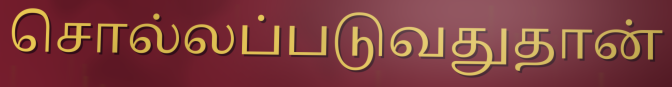
சொல்லப்படுவதுதான்